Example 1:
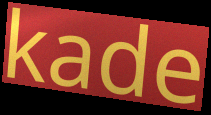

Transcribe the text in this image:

kade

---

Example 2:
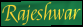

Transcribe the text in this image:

Rajeshwar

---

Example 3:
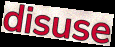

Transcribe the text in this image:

disuse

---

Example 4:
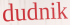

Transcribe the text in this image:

dudnik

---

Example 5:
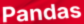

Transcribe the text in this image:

Pandas